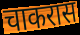
चाकरास